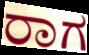
ರಾಗ